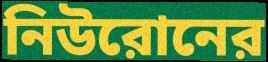
নিউরোনের